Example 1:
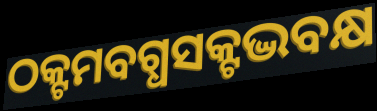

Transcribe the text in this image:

ଠକ୍ଟମବଗ୍ଧସକ୍ଟଦ୍ଭବକ୍ଷ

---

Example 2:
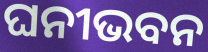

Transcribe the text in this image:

ଘନୀଭବନ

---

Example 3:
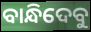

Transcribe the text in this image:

ବାନ୍ଧିଦେବୁ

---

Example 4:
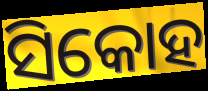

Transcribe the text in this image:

ସିକୋହ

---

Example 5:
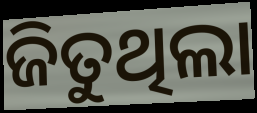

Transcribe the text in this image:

ଜିତୁଥିଲା